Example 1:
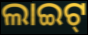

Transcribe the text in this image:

ଲାଇଟ୍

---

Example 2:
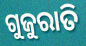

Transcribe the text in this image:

ଗୁଜୁରାତି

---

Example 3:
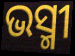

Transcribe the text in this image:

ଭସ୍ମୀ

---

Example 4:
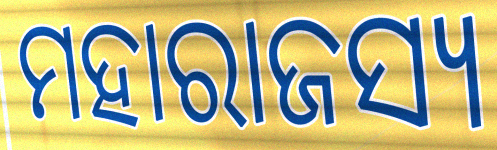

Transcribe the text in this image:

ମହାରାଜସ୍ୟ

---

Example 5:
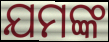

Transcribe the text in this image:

ଯମଙ୍କ